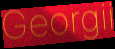
Georgii